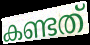
കണ്ടത്